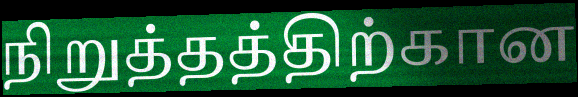
நிறுத்தத்திற்கான